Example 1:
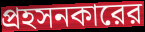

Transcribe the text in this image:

প্রহসনকারের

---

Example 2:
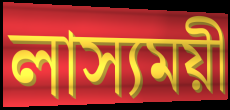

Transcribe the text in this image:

লাস্যময়ী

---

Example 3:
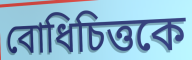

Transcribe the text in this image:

বোধিচিত্তকে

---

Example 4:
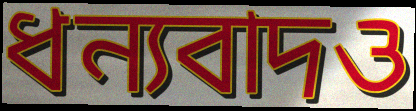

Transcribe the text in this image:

ধন্যবাদও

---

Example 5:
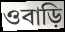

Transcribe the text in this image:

ওবাড়ি